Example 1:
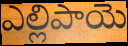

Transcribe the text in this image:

ఎల్లిపాయె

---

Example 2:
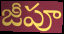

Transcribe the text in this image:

జీపూ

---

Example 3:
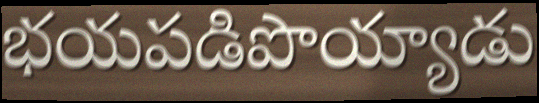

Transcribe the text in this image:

భయపడిపొయ్యాడు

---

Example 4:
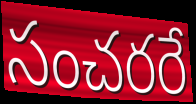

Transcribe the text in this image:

సంచరరే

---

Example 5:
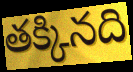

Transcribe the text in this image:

తక్కినది